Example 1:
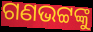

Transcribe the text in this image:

ଗଣଭଟ୍ଟଙ୍କୁ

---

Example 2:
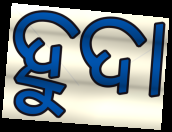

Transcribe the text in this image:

ହୁଦା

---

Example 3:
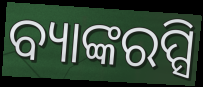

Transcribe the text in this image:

ବ୍ୟାଙ୍କରପ୍ସି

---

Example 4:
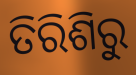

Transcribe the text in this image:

ତିରିଶିରୁ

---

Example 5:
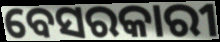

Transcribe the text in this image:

ବେସରକାରୀ